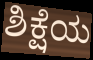
ಶಿಕ್ಷೆಯ